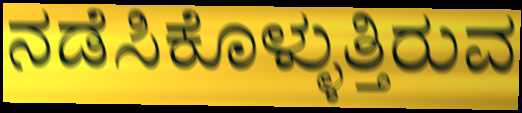
ನಡೆಸಿಕೊಳ್ಳುತ್ತಿರುವ